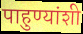
पाहुण्यांशी